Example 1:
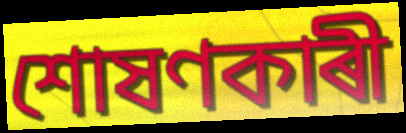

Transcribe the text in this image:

শোষণকাৰী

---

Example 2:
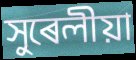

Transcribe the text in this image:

সুৰেলীয়া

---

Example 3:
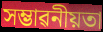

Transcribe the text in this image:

সম্ভাৱনীয়তা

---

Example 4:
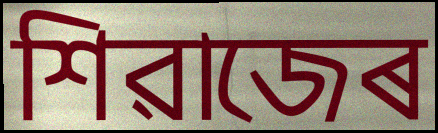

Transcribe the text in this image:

শিৱাজেৰ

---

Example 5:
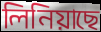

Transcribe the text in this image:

লিনিয়াছে